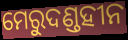
ମେରୁଦଣ୍ଡହୀନ